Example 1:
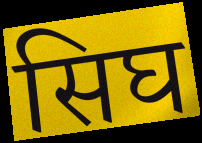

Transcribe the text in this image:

सिघ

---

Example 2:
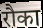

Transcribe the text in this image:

रौका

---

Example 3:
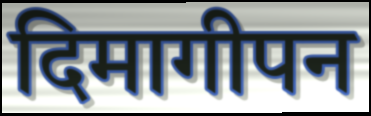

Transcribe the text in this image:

दिमागीपन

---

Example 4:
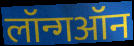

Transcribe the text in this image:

लॉन्गऑन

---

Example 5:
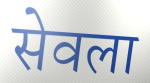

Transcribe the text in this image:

सेवला